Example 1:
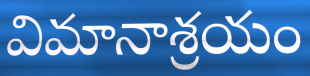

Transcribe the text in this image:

విమానాశ్రయం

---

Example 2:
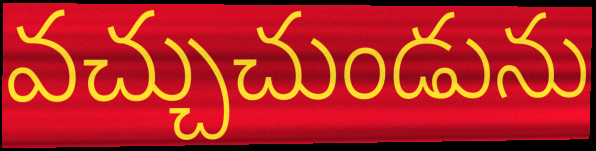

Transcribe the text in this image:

వచ్చుచుండును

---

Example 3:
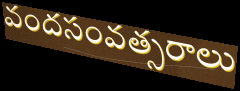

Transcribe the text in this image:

వందసంవత్సరాలు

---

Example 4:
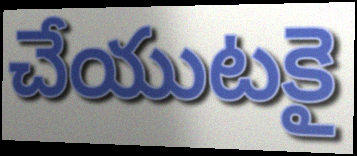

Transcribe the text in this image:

చేయుటకై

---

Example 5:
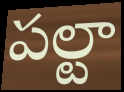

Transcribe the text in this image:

పల్టా